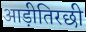
आड़ीतिरछी